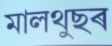
মালথুছৰ